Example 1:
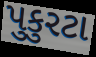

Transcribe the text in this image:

પુકુરટા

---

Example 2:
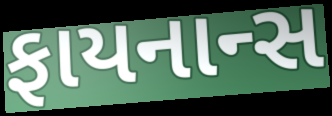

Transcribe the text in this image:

ફાયનાન્સ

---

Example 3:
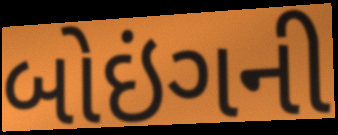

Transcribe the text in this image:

બોઇંગની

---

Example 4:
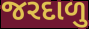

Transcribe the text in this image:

જરદાળુ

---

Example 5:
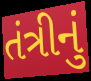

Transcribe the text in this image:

તંત્રીનું